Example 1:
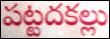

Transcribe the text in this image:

పట్టదకల్లు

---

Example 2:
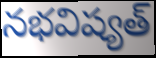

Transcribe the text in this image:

నభవిష్యత్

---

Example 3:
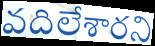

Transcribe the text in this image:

వదిలేశారని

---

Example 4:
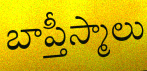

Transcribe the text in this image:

బాప్తీస్మాలు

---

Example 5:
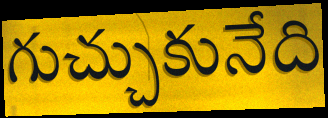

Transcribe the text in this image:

గుచ్చుకునేది